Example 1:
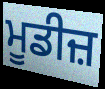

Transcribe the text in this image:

ਮੂਡੀਜ਼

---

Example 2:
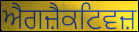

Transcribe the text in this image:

ਐਗਜ਼ੈਕਟਿਵਜ਼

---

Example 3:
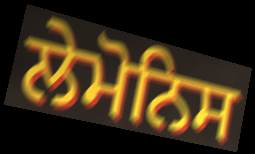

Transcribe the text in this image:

ਲੇਮੋਨਿਸ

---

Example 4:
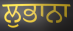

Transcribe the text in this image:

ਲੁਭਾਨਾ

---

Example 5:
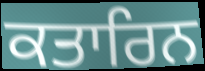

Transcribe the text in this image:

ਕਤਾਰਿਨ